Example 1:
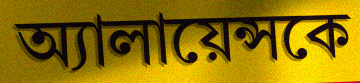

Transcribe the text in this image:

অ্যালায়েন্সকে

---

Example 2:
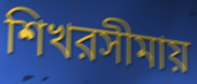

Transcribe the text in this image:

শিখরসীমায়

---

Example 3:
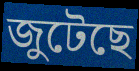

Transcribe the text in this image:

জুটেছে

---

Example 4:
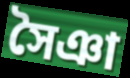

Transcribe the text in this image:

সৈঞা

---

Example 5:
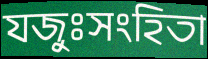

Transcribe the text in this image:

যজুঃসংহিতা